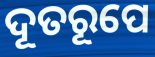
ଦୂତରୂପେ